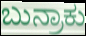
ಬುನ್ರಾಕು